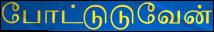
போட்டுடுவேன்